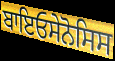
ਬਾਇਓਸੇਨੋਸਿਸ